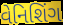
વેનિશિંગ